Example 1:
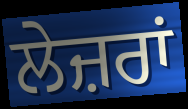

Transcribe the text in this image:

ਲੇਜ਼ਰਾਂ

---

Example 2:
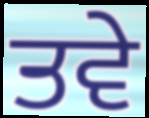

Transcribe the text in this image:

ਤਵੇ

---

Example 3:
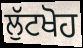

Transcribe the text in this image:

ਲੁੱਟਖੋਹ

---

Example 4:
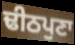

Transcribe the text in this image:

ਢੀਠਪੁਣਾ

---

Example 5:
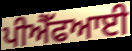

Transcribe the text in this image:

ਪੀਐੱਫਆਈ